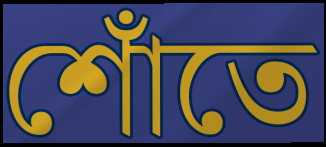
শোঁতে